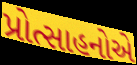
પ્રોત્સાહનોએ